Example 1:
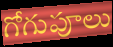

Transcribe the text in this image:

గోగుపూలు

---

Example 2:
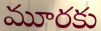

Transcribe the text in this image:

మూరకు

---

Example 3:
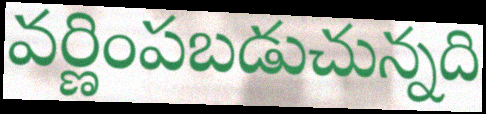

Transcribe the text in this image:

వర్ణింపబడుచున్నది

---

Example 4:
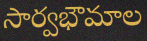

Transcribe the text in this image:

సార్వభౌమాల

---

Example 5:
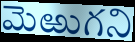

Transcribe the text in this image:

మెఱుగని